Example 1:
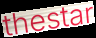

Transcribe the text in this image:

thestar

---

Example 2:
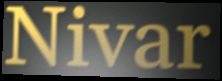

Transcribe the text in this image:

Nivar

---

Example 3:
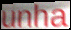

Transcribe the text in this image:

unha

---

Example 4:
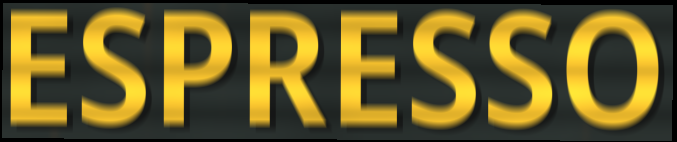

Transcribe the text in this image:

ESPRESSO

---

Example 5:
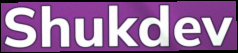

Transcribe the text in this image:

Shukdev